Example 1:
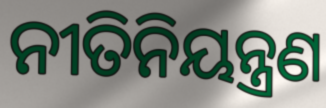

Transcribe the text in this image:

ନୀତିନିୟନ୍ତ୍ରଣ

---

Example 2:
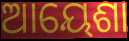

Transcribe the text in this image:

ଆୟେଶା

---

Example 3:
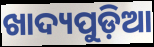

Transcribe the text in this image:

ଖାଦ୍ୟପୁଡ଼ିଆ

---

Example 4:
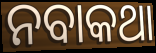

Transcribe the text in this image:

ନବାକଥା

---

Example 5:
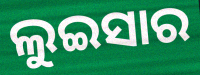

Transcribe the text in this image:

ଲୁଇସାର